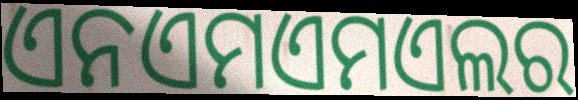
ଏନଏମଏମଏଲର